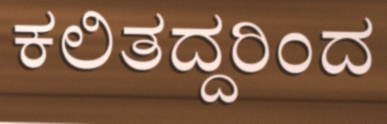
ಕಲಿತದ್ದರಿಂದ